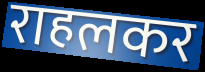
राहलकर